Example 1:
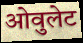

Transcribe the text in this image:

ओवुलेट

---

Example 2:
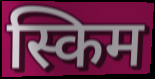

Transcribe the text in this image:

स्किम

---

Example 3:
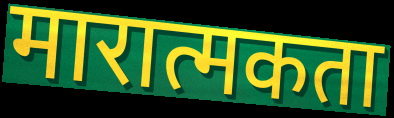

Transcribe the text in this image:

मारात्मकता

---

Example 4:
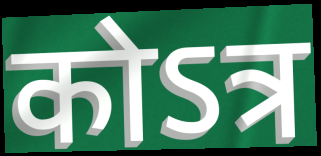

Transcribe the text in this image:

कोऽत्र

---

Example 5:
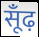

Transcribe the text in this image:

सूँढ़